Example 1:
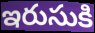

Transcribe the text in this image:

ఇరుసుకి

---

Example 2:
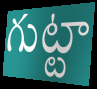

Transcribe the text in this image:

గుట్టా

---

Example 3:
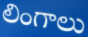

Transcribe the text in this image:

లింగాలు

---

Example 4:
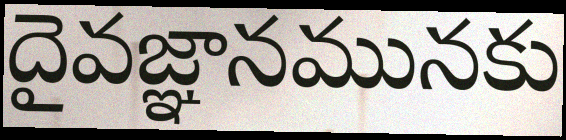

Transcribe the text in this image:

దైవజ్ఞానమునకు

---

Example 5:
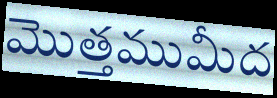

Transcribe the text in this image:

మొత్తముమీద